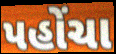
પહોંચા